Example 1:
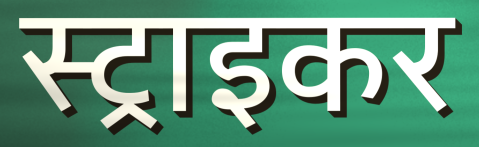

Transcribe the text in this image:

स्ट्राइकर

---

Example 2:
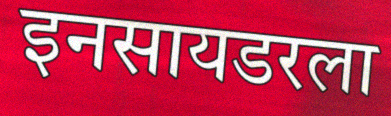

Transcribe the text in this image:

इनसायडरला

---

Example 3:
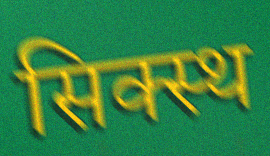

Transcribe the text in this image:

सिक्स्थ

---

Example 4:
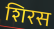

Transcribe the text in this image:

शिरस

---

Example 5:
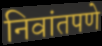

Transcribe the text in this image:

निवांतपणे